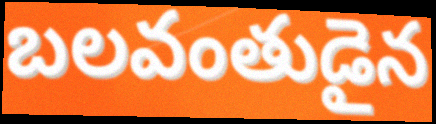
బలవంతుడైన